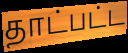
தாட்பட்ட